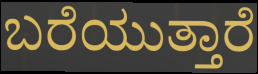
ಬರೆಯುತ್ತಾರೆ